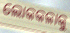
ଲୋକକଳାକୁ